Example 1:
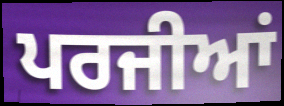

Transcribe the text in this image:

ਪਰਜੀਆਂ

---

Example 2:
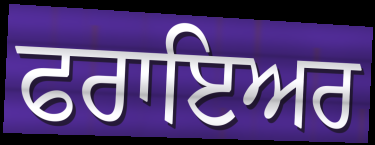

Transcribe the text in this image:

ਫਰਾਇਅਰ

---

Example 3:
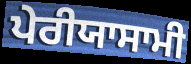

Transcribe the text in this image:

ਪੇਰੀਯਾਸਾਮੀ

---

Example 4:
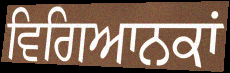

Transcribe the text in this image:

ਵਿਗਿਆਨਕਾਂ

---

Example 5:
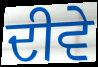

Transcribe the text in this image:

ਦੀਵੇ